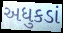
અધુકડાં